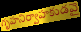
గృహనిర్వాహకుడవై